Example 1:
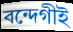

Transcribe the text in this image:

বন্দেগীই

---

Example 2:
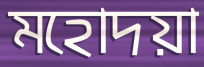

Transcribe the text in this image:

মহোদয়া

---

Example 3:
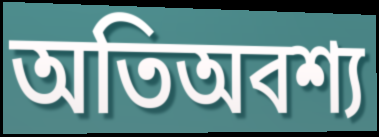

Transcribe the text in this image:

অতিঅবশ্য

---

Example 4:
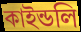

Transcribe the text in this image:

কাইন্ডলি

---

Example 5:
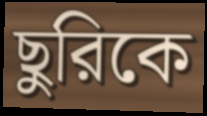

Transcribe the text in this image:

ছুরিকে